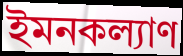
ইমনকল্যাণ